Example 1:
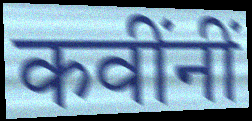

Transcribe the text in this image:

कवींनीं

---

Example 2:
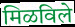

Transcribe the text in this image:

मिळविले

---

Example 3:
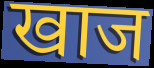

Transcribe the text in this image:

खाज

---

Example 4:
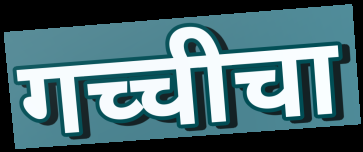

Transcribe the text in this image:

गच्चीचा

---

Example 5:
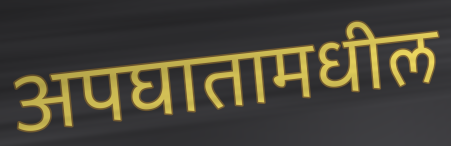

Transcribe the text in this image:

अपघातामधील